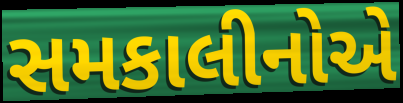
સમકાલીનોએ